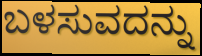
ಬಳಸುವದನ್ನು